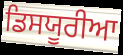
ਡਿਸਯੂਰੀਆ